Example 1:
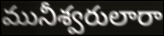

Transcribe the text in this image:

మునీశ్వరులారా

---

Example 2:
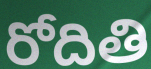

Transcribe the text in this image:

రోదితి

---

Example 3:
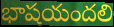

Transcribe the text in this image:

భాషయందలి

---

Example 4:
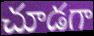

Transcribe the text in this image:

చూడగా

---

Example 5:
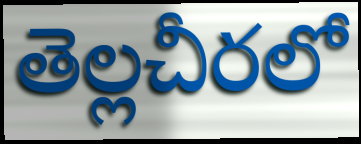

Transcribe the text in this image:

తెల్లచీరలో